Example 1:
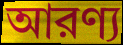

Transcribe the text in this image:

আরণ্য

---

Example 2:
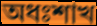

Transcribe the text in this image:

অধঃশাখ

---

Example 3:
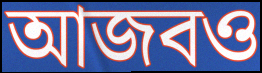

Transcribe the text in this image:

আজবও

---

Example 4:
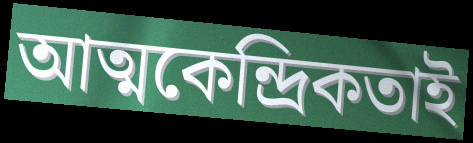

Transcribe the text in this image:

আত্মকেন্দ্রিকতাই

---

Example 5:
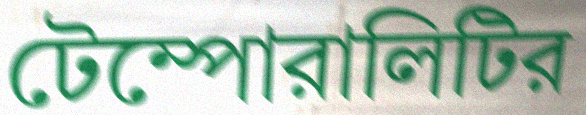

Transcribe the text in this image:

টেম্পোরালিটির